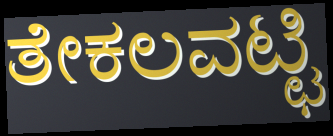
ತೇಕಲವಟ್ಟಿ